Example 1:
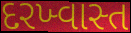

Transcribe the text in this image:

દરખ્વાસ્ત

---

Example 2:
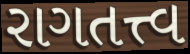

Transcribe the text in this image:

રાગતત્ત્વ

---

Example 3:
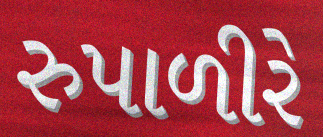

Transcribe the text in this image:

રુપાળીરે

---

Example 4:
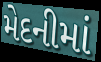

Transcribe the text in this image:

મેદનીમાં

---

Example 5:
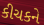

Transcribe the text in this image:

કીચકને